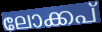
ലോക്കപ്